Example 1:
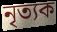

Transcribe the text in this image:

নৃত্যক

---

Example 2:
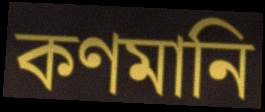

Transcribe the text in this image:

কণমানি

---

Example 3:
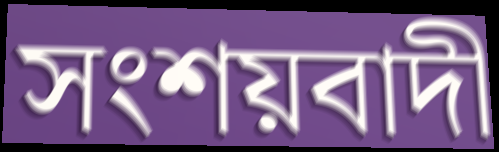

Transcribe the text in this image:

সংশয়বাদী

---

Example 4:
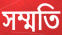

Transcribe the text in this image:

সম্মতি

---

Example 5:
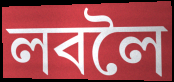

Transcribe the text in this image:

লবলৈ